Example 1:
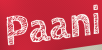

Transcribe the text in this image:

Paani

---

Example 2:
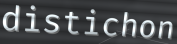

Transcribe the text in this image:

distichon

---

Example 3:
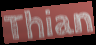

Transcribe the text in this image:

Thian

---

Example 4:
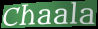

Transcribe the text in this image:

Chaala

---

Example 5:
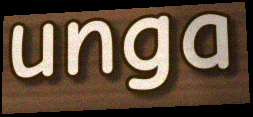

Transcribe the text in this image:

unga